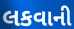
લકવાની